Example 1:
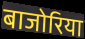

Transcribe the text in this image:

बाजोरिया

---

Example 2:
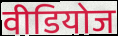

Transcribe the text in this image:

वीडियोज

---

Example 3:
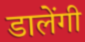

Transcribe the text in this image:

डालेंगी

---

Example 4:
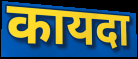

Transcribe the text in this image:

कायदा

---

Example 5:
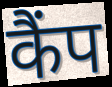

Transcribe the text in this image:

कैंप